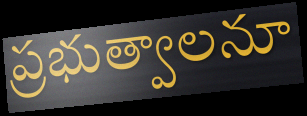
ప్రభుత్వాలనూ